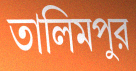
তালিমপুর